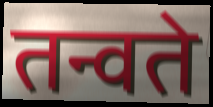
तन्वते